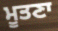
ਮੂਤਣਾ